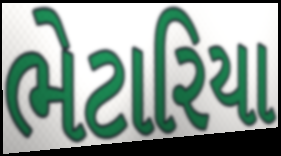
ભેટારિયા